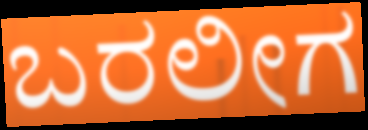
ಬರಲೀಗ